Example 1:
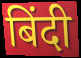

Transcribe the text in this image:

बिंदी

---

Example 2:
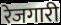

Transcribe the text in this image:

रेजगारी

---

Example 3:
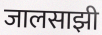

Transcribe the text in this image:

जालसाझी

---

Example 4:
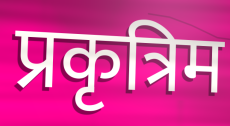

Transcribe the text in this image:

प्रकृत्रिम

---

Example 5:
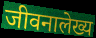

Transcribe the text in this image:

जीवनालेख्य